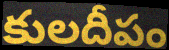
కులదీపం